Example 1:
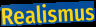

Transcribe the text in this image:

Realismus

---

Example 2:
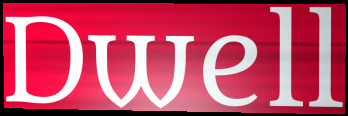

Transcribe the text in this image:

Dwell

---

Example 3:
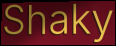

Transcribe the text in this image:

Shaky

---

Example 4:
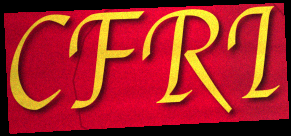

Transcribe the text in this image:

CFRI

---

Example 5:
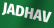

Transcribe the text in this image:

JADHAV